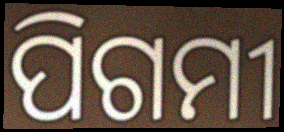
ପିଗମୀ